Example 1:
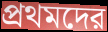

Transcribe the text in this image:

প্রথমদের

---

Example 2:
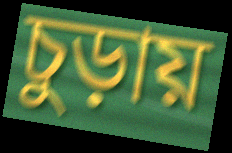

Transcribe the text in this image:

চুড়ায়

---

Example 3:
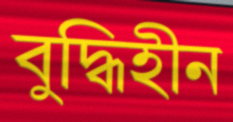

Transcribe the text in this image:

বুদ্ধিহীন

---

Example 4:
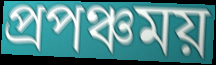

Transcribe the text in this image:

প্রপঞ্চময়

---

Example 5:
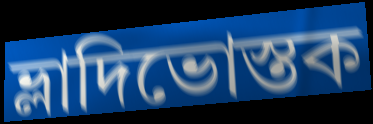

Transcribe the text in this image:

ভ্লাদিভোস্তক